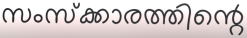
സംസ്ക്കാരത്തിന്റെ